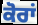
ਕੋਰਾਂ